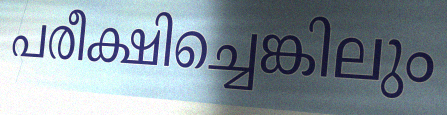
പരീക്ഷിച്ചെങ്കിലും